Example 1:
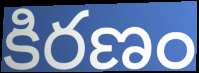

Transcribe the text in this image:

కిరణం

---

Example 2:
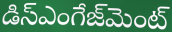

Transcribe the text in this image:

డిస్ఎంగేజ్‌మెంట్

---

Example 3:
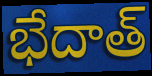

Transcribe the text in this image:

భేదాత్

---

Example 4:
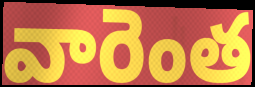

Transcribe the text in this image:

వారెంత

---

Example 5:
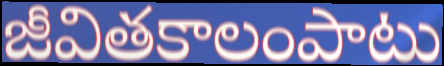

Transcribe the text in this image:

జీవితకాలంపాటు